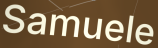
Samuele